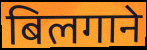
बिलगाने